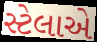
સ્ટેલાએ